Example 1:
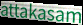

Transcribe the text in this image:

attakasam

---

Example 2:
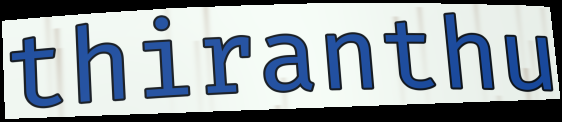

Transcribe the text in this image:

thiranthu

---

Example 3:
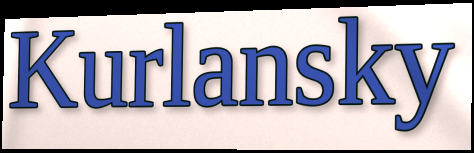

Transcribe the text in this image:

Kurlansky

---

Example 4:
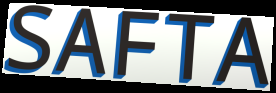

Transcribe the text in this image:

SAFTA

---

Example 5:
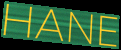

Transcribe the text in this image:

HANE